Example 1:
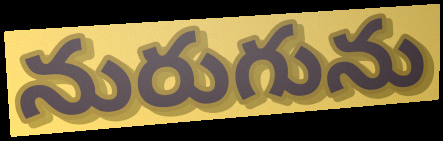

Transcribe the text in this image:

నురుగును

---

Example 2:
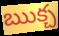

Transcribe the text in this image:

ఋక్చ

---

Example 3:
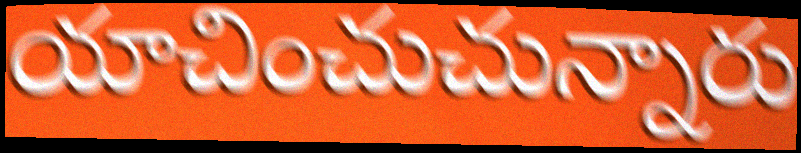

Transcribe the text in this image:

యాచించుచున్నారు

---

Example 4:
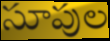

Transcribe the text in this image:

సూపుల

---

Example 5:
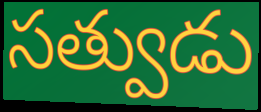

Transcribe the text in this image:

సత్వుడు